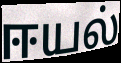
ஈயல்